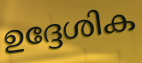
ഉദ്ദേശിക